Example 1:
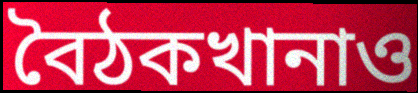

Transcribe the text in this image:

বৈঠকখানাও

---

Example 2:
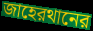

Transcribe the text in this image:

জাহেরথানের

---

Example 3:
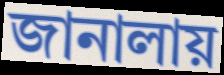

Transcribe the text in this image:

জানালায়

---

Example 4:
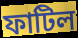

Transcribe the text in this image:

ফাটিল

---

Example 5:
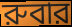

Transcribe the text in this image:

রুবার